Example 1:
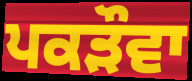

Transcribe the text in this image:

ਪਕੜੌਵਾ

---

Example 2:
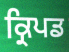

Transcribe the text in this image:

ਕ੍ਰਿਪਡ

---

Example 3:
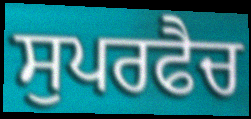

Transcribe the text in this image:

ਸੁਪਰਫੈਚ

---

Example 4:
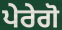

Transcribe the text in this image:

ਪੇਰੇਗੋ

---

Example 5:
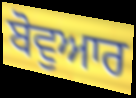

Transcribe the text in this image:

ਬੋਵੁਆਰ